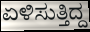
ಏಳಿಸುತ್ತಿದ್ದ